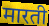
मारती